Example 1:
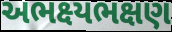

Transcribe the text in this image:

અભક્ષ્યભક્ષણ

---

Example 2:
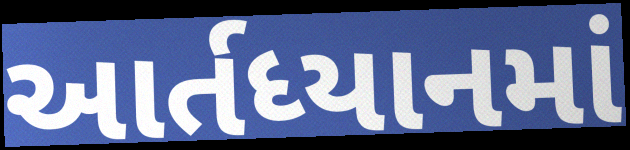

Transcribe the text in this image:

આર્તધ્યાનમાં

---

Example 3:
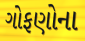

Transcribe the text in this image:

ગોફણોના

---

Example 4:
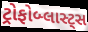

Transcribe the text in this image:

ટ્રોફોબ્લાસ્ટ્સ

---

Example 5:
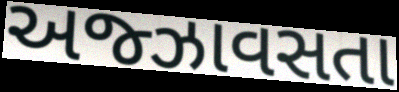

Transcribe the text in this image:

અજ્ઝાવસતા